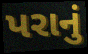
પરાનું